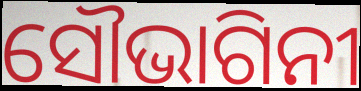
ସୌଭାଗିନୀ